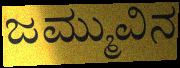
ಜಮ್ಮುವಿನ